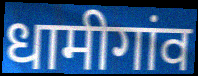
धामीगांव